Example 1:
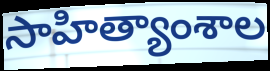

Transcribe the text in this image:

సాహిత్యాంశాల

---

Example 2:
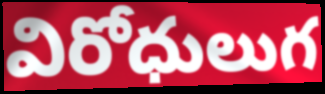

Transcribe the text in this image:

విరోధులుగ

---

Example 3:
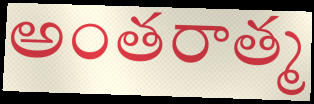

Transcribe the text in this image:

అంతరాత్మ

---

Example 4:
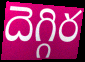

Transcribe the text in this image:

దెగ్గిర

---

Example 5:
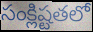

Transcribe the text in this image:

సంక్లిష్టతలో